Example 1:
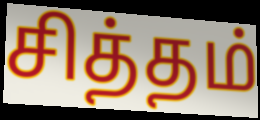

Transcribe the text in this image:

சித்தம்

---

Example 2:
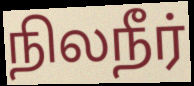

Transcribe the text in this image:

நிலநீர்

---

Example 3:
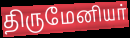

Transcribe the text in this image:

திருமேனியர்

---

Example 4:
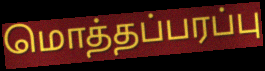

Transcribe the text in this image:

மொத்தப்பரப்பு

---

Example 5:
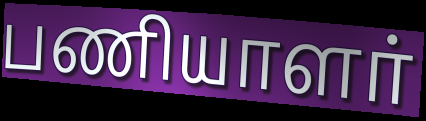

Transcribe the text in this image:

பணியாளர்